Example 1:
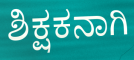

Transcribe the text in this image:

ಶಿಕ್ಷಕನಾಗಿ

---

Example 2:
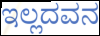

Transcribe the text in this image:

ಇಲ್ಲದವನ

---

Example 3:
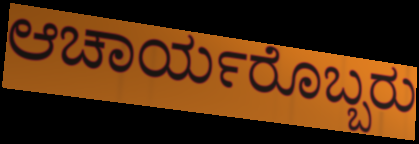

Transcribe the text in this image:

ಆಚಾರ್ಯರೊಬ್ಬರು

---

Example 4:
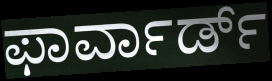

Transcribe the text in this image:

ಫಾರ್ವಾರ್ಡ್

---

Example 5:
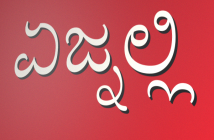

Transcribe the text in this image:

ಏಜ್ನಲ್ಲಿ